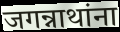
जगन्नाथांना